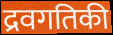
द्रवगतिकी